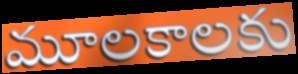
మూలకాలకు